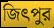
জিৎপুর